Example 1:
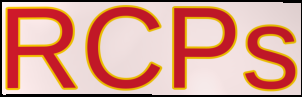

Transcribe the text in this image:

RCPs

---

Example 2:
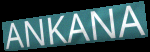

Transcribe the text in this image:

ANKANA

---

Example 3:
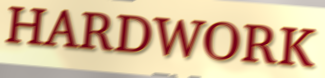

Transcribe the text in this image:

HARDWORK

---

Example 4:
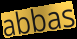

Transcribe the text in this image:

abbas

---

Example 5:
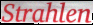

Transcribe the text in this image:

Strahlen